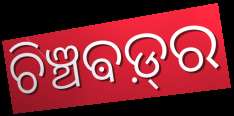
ଚିଞ୍ଚଵଡ଼୍‌ର